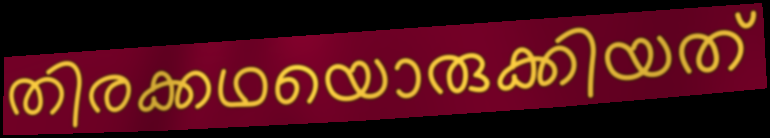
തിരക്കഥയൊരുക്കിയത്